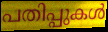
പതിപ്പുകൾ